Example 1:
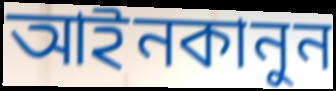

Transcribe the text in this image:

আইনকানুন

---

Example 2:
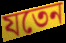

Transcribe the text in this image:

যতেন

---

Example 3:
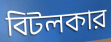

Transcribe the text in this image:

বিটলকার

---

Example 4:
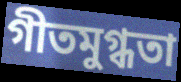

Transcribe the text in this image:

গীতমুগ্ধতা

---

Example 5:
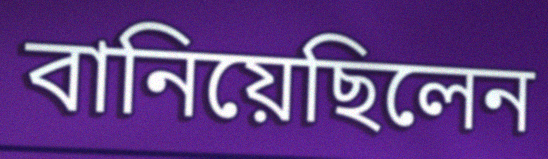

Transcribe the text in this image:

বানিয়েছিলেন